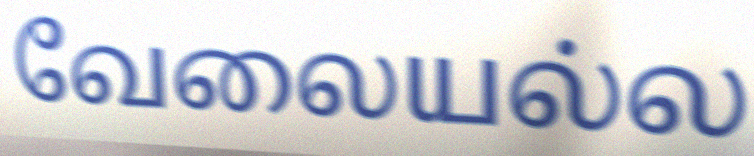
வேலையல்ல